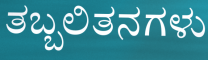
ತಬ್ಬಲಿತನಗಳು